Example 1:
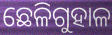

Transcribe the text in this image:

ଛେଳିଗୁହାଳ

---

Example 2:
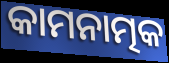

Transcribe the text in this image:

କାମନାତ୍ମକ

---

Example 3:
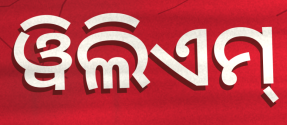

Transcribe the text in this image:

ୱିଲିଏମ୍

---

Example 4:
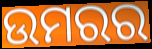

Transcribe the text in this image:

ଉମରର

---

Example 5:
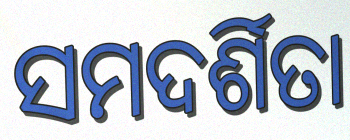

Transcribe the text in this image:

ସମଦର୍ଶିତା